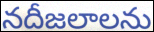
నదీజలాలను